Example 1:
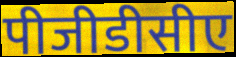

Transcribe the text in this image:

पीजीडीसीए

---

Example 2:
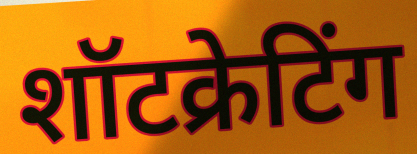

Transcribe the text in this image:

शॉटक्रेटिंग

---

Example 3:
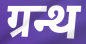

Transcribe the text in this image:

ग्रन्थ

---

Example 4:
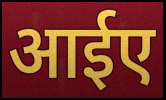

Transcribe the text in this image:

आईए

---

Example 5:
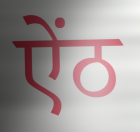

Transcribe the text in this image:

ऐंठ